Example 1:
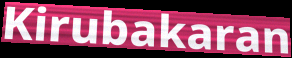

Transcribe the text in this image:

Kirubakaran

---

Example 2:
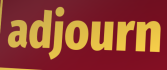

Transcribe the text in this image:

adjourn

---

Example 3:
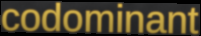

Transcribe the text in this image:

codominant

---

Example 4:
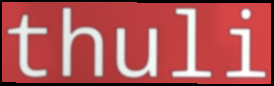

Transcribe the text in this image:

thuli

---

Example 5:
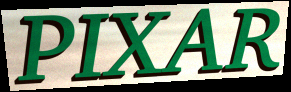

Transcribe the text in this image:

PIXAR